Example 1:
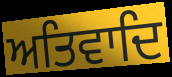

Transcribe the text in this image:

ਅਤਿਵਾਦਿ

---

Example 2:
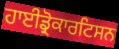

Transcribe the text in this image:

ਹਾਈਡ੍ਰੋਕਾਰਟਿਸਨ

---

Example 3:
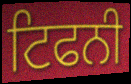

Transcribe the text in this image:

ਟਿਫਨੀ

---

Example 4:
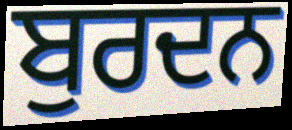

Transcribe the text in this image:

ਬੁਰਦਨ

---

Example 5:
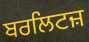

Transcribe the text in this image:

ਬਰਲਿਟਜ਼